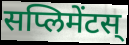
सप्लिमेंटस्